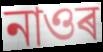
নাওৰ